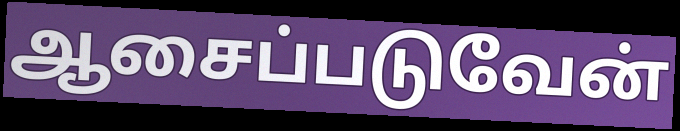
ஆசைப்படுவேன்